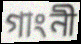
গাংনী